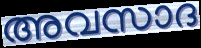
അവസാദ